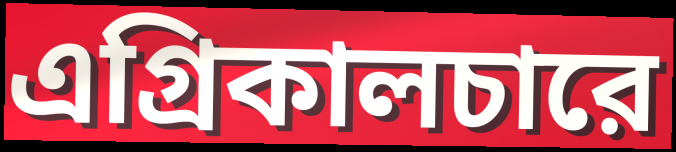
এগ্রিকালচারে